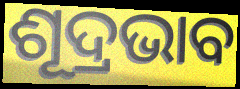
ଶୂଦ୍ରଭାବ